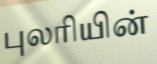
புலரியின்